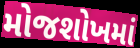
મોજશોખમાં